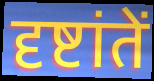
दृष्टांतें